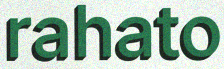
rahato